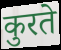
कुरते